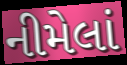
નીમેલાં